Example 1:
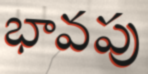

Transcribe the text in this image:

భావపు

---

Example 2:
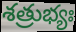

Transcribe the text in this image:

శత్రుభ్యః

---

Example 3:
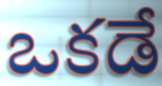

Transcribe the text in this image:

ఒకడే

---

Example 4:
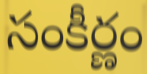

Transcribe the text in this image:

సంకీర్ణం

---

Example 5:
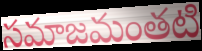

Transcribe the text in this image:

సమాజమంతటి